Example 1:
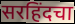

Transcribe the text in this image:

सरहिंदचा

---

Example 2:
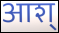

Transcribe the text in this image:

आश्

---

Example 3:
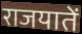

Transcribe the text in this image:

राजयातें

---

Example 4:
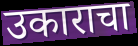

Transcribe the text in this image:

उकाराचा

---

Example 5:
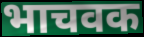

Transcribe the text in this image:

भाचवक